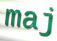
maj